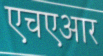
एचएआर